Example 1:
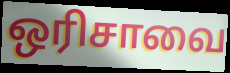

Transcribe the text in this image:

ஒரிசாவை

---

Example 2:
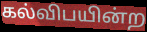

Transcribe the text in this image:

கல்விபயின்ற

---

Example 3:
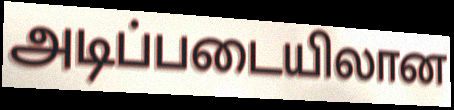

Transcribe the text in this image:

அடிப்படையிலான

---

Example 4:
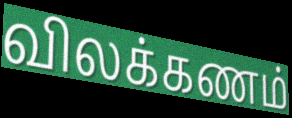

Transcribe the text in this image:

விலக்கணம்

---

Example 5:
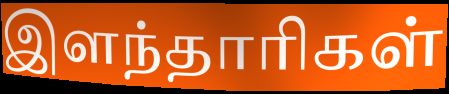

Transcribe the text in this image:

இளந்தாரிகள்